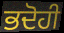
ਭਦੋਹੀ